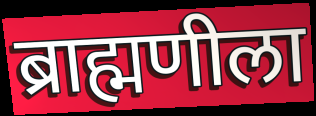
ब्राह्मणीला